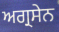
ਅਗ੍ਰਸੇਨ